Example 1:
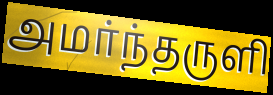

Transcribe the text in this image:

அமர்ந்தருளி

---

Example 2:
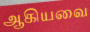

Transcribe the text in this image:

ஆகியவை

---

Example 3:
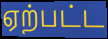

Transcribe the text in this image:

ஏற்பட்ட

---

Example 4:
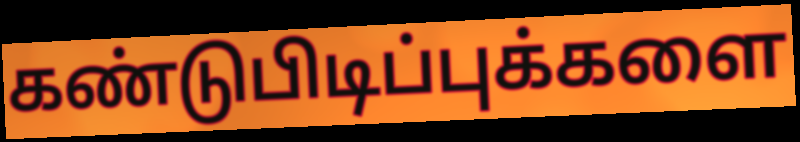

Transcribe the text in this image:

கண்டுபிடிப்புக்களை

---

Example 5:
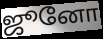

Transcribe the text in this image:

ஜூனோ